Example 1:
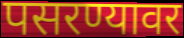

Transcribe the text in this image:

पसरण्यावर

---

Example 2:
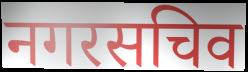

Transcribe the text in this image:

नगरसचिव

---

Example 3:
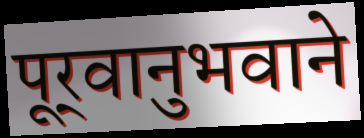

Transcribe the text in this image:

पूर्वानुभवाने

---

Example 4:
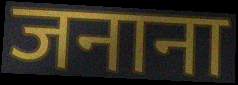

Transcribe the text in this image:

जनाना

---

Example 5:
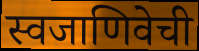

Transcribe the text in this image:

स्वजाणिवेची